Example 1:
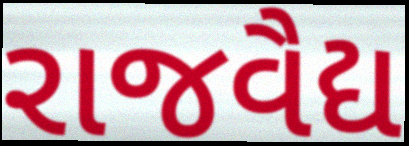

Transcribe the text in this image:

રાજવૈદ્ય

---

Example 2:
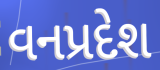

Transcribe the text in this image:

વનપ્રદેશ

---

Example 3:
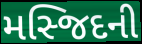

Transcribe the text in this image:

મસ્જિદની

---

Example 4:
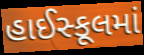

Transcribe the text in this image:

હાઈસ્કૂલમાં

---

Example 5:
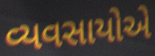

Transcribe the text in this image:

વ્યવસાયોએ